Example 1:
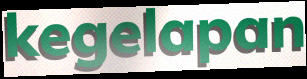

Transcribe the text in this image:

kegelapan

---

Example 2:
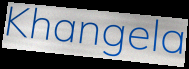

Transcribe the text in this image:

Khangela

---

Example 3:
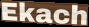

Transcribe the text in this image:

Ekach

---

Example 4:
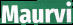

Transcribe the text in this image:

Maurvi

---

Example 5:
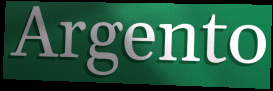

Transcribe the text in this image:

Argento